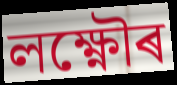
লক্ষ্ণৌৰ